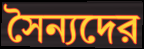
সৈন্যদের